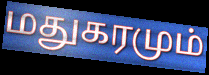
மதுகரமும்